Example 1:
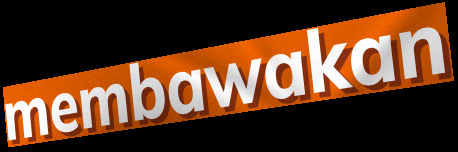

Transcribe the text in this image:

membawakan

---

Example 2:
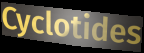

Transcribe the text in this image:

Cyclotides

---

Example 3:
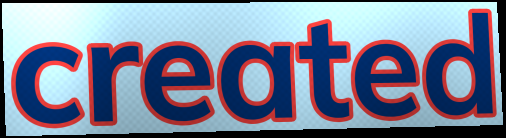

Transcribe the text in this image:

created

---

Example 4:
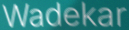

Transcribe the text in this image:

Wadekar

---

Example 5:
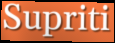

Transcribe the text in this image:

Supriti